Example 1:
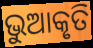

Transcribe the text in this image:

ଭୁଆକୃତି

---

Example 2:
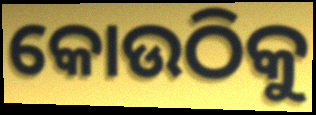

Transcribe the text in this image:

କୋଉଠିକୁ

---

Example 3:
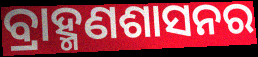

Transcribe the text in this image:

ବ୍ରାହ୍ମଣଶାସନର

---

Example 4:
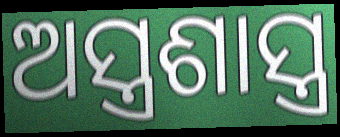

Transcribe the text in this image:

ଅସ୍ତ୍ରଶାସ୍ତ୍ର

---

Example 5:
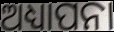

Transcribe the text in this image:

ଅଧ୍ୟାପନା